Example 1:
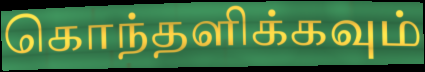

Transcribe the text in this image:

கொந்தளிக்கவும்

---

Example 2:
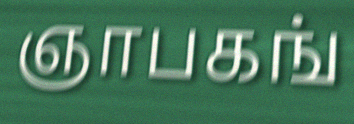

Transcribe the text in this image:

ஞாபகங்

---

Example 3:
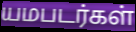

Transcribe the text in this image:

யமபடர்கள்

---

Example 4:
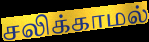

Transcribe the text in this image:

சலிக்காமல்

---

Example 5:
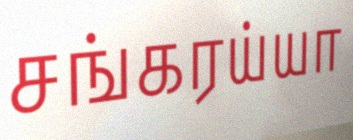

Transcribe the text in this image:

சங்கரய்யா